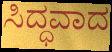
ಸಿದ್ಧವಾದ